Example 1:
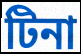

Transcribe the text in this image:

টিনা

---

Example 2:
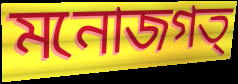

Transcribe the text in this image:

মনোজগত্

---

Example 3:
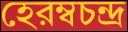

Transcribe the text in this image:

হেরম্বচন্দ্র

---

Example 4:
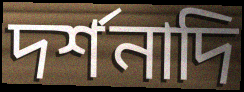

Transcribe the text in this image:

দর্শনাদি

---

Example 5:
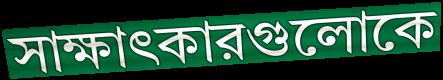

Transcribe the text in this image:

সাক্ষাৎকারগুলোকে